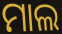
ମାଲ